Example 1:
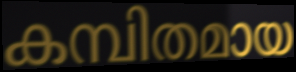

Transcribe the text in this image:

കമ്പിതമായ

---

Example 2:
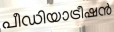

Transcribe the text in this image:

പീഡിയാട്രീഷൻ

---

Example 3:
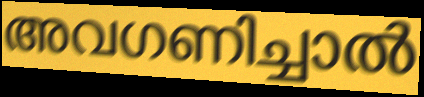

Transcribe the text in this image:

അവഗണിച്ചാൽ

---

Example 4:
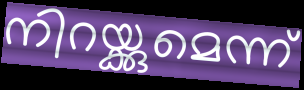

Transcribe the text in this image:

നിറയ്ക്കുമെന്ന്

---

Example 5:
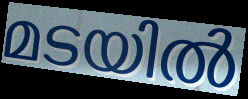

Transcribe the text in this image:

മടയിൽ